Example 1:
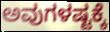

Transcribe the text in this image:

ಅವುಗಳಷ್ಟಕ್ಕೆ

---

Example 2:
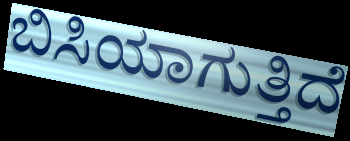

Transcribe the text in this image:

ಬಿಸಿಯಾಗುತ್ತಿದೆ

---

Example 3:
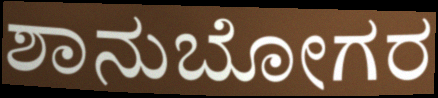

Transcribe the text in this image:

ಶಾನುಬೋಗರ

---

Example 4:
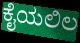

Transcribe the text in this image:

ಕೈಯಲಿಲ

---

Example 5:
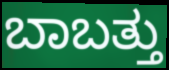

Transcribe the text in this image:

ಬಾಬತ್ತು